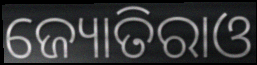
ଜ୍ୟୋତିରାଓ